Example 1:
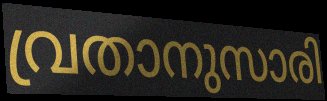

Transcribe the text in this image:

വ്രതാനുസാരി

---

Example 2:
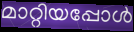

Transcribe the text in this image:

മാറ്റിയപ്പോൾ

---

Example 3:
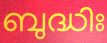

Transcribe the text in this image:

ബുദ്ധിഃ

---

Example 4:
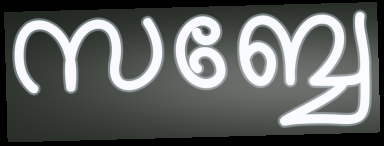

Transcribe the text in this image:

സബ്ബേ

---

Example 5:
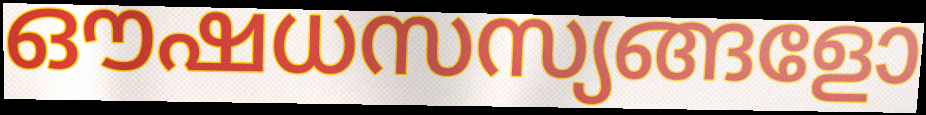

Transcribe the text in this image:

ഔഷധസസ്യങ്ങളോ